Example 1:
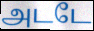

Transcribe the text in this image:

அடடே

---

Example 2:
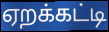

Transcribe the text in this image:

ஏறக்கட்டி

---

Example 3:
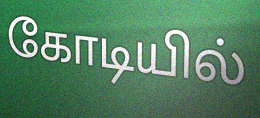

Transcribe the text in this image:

கோடியில்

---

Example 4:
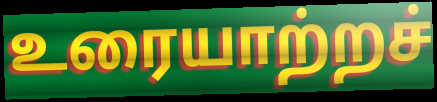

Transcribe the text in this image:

உரையாற்றச்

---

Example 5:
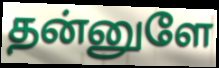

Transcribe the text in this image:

தன்னுளே